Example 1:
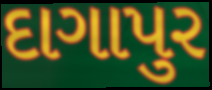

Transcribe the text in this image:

દાગાપુર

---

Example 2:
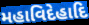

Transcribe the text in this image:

મહાવિદેહાદિ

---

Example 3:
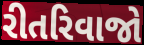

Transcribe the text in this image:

રીતરિવાજો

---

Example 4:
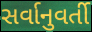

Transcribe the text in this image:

સર્વાનુવર્તી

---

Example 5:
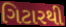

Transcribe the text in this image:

ગિટારથી